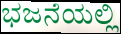
ಭಜನೆಯಲ್ಲಿ